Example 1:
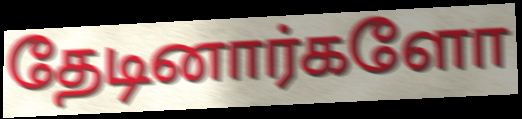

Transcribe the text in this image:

தேடினார்களோ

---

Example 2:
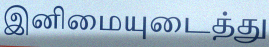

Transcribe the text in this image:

இனிமையுடைத்து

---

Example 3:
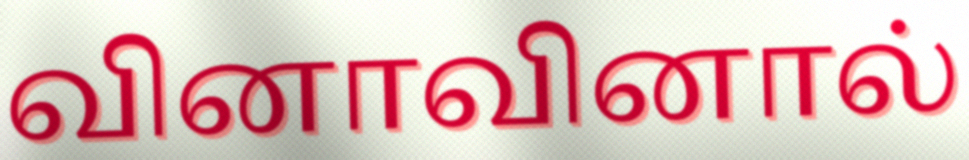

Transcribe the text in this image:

வினாவினால்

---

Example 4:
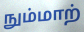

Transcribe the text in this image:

நும்மாற்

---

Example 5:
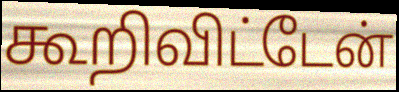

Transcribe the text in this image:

கூறிவிட்டேன்